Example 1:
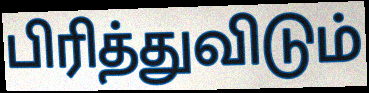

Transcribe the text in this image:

பிரித்துவிடும்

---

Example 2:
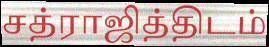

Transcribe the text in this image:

சத்ராஜித்திடம்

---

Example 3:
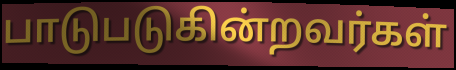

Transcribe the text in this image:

பாடுபடுகின்றவர்கள்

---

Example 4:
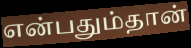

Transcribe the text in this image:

என்பதும்தான்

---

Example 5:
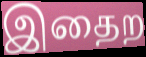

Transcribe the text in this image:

இதைற